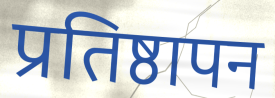
प्रतिष्ठापन